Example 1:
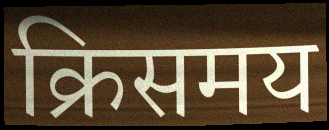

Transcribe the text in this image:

क्रिसमय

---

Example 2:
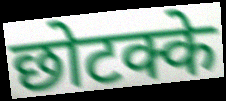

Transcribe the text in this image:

छोटक्के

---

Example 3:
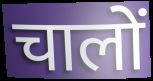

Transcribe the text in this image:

चालों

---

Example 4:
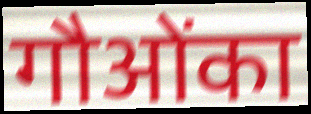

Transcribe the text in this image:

गौओंका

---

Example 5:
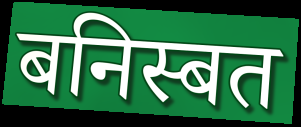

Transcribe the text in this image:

बनिस्बत